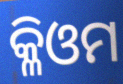
କ୍ଳିଓମ